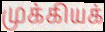
முக்கியக்